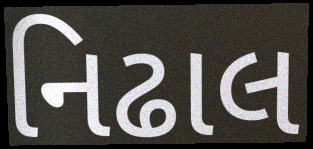
નિઢાલ